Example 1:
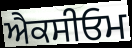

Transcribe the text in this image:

ਐਕਸੀਓਮ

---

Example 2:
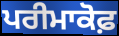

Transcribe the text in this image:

ਪਰੀਮਾਕੋਫ਼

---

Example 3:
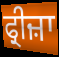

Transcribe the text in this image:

ਫ੍ਰੀਜ਼ਾ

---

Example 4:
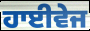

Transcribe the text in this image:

ਹਾਈਵੇਜ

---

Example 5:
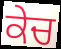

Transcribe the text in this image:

ਕੇਚ